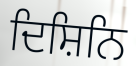
ਦਿਸ਼ਿਨਿ